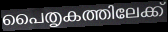
പൈതൃകത്തിലേക്ക്